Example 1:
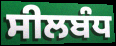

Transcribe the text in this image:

ਸੀਲਬੰਧ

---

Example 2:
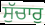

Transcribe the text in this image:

ਸੁੱਚਾਰੁ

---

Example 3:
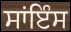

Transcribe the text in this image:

ਸਾਂਇੰਸ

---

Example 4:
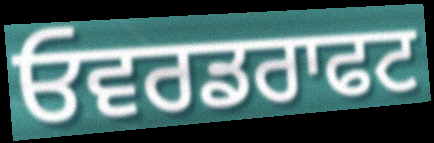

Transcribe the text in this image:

ਓਵਰਡਰਾਫਟ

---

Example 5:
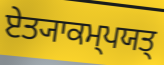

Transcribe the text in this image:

ਏਤ੍ਯਾਕਮ੍ਪਯਤ੍